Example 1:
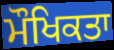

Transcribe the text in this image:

ਮੌਖਿਕਤਾ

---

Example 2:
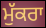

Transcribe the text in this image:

ਮੁੱਕਰਾ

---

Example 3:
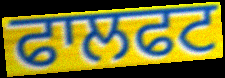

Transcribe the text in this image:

ਫਾਲਫਟ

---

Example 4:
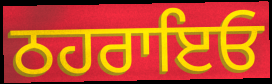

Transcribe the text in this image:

ਠਹਰਾਇਓ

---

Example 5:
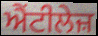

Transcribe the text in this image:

ਐਂਟੀਲੇਜ਼